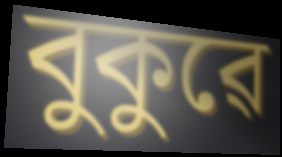
বুকুৱে